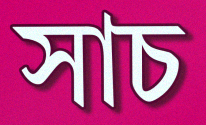
সাচ